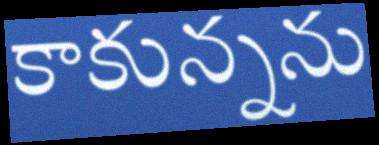
కాకున్నను